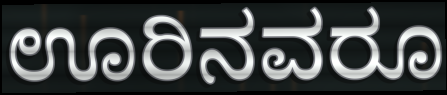
ಊರಿನವರೂ